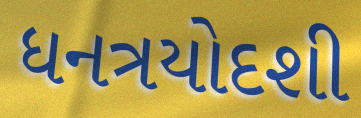
ધનત્રયોદશી